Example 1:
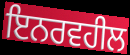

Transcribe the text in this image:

ਇਨਰਵਹੀਲ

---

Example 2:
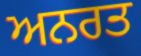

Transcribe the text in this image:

ਅਨਰਤ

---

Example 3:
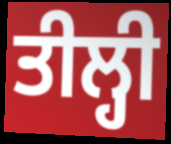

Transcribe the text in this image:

ਤੀਲ੍ਹੀ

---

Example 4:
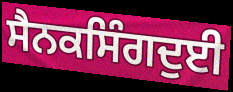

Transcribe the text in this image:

ਸੈਨਕਸਿੰਗਦੁਈ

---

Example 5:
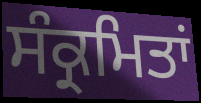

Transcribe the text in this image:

ਸੰਕ੍ਰਮਿਤਾਂ